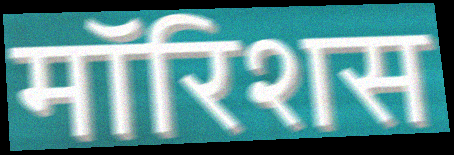
मॉरिशस